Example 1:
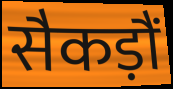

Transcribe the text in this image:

सैकड़ौं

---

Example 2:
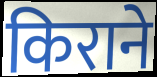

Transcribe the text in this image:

किराने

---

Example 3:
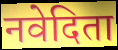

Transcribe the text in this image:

नवेदिता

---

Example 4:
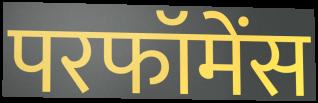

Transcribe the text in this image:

परफॉमेंस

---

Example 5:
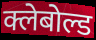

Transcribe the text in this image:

क्लेबोल्ड